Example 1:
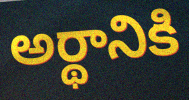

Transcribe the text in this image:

అర్థానికి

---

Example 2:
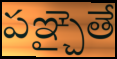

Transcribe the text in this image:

పఞ్చైతే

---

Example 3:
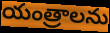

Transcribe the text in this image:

యంత్రాలను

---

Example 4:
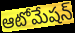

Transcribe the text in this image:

ఆటోమేషన్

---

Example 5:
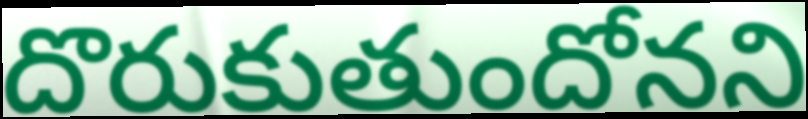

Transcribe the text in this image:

దొరుకుతుందోనని